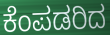
ಕೆಂಪಡರಿದ